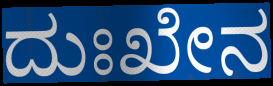
ದುಃಖೇನ